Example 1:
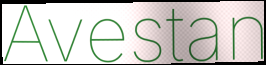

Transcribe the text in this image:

Avestan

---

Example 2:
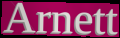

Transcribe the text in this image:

Arnett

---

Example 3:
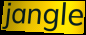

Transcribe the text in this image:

jangle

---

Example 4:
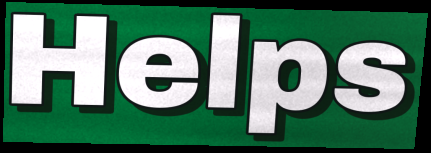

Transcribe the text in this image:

Helps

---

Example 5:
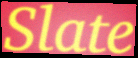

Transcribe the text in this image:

Slate